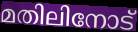
മതിലിനോട്